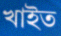
খাইত